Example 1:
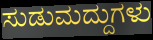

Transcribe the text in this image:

ಸುಡುಮದ್ದುಗಳು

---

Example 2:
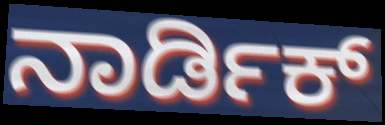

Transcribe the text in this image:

ನಾರ್ಡಿಕ್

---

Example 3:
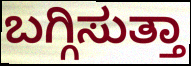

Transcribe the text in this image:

ಬಗ್ಗಿಸುತ್ತಾ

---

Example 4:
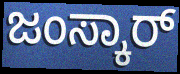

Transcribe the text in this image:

ಜಂಸ್ಕಾರ್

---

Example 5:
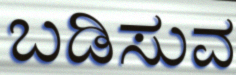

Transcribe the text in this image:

ಬಡಿಸುವ